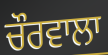
ਚੌਰਵਾਲਾ